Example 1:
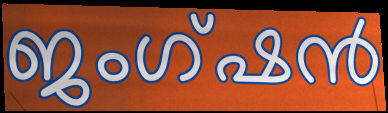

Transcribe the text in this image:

ജംഗ്ഷൻ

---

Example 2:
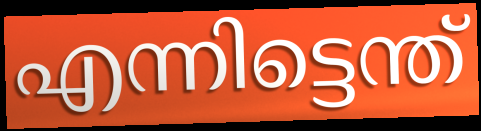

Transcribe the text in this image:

എന്നിട്ടെന്ത്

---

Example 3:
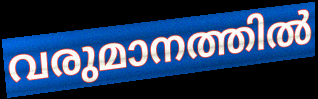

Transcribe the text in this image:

വരുമാനത്തിൽ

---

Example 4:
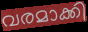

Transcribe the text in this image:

വരമാക്കി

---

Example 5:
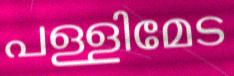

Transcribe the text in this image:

പള്ളിമേട